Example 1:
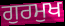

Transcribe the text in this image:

ਗੁਰਮੁਖ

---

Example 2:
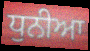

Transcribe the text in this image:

ਧੁਨੀਆ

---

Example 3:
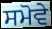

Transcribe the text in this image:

ਸਮੋਵੇ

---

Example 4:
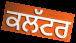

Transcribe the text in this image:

ਕਲੱਟਰ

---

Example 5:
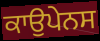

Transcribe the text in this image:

ਕਾਉਪੇਨਸ